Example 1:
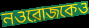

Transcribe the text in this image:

নওরোজকেও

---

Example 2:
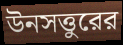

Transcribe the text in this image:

উনসত্তুরের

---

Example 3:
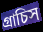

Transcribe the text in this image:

গ্রাচিস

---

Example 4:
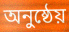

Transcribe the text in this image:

অনুষ্ঠেয়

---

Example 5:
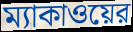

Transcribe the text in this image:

ম্যাকাওয়ের